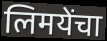
लिमयेंचा